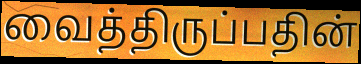
வைத்திருப்பதின்